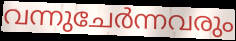
വന്നുചേർന്നവരും